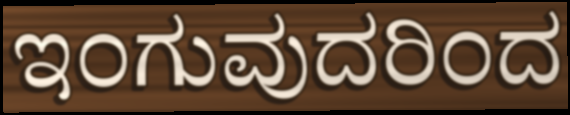
ಇಂಗುವುದರಿಂದ